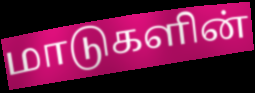
மாடுகளின்